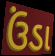
ઉંડા